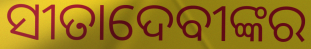
ସୀତାଦେବୀଙ୍କର